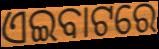
ଏଇବାଟରେ